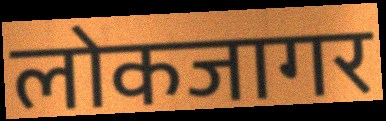
लोकजागर